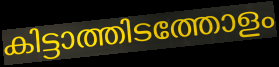
കിട്ടാത്തിടത്തോളം